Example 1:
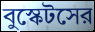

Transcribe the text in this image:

বুস্কেটসের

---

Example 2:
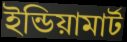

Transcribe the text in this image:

ইন্ডিয়ামার্ট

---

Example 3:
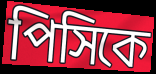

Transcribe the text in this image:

পিসিকে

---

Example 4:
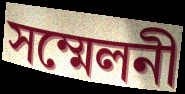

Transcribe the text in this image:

সম্মেলনী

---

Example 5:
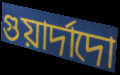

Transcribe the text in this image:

গুয়ার্দাদো